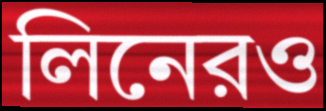
লিনেরও